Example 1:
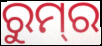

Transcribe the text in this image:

ରୁମ୍‍ର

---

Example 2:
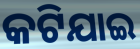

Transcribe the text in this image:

କଟିଯାଇ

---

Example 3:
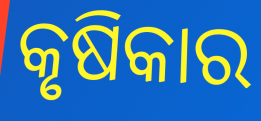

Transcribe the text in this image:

କୃଷିକାର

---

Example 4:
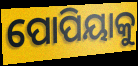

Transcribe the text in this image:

ପୋପିୟାକୁ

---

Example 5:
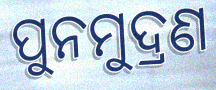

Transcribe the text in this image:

ପୁନମୁଦ୍ରଣ